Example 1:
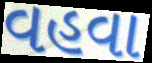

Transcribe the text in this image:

વહવા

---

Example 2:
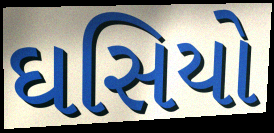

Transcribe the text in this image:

ઘસિયો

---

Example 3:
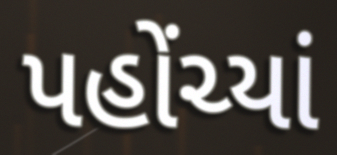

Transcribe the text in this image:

પહોંચ્યાં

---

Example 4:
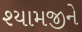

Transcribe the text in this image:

શ્યામજીને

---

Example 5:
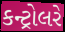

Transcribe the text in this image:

કન્ટ્રોલરે